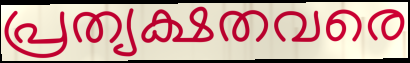
പ്രത്യക്ഷതവരെ